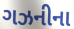
ગઝનીના